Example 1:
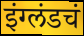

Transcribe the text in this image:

इंग्लंडचं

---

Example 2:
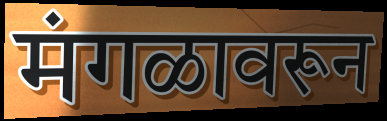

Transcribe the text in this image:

मंगळावरून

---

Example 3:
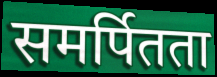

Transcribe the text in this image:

समर्पितता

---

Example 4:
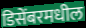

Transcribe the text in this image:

डिसेंबरमधील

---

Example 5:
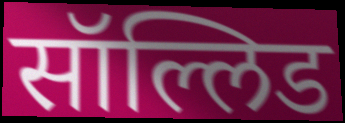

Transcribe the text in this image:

सॉल्लिड